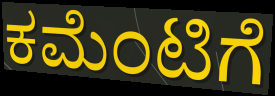
ಕಮೆಂಟಿಗೆ